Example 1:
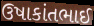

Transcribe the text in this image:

ઉષાકાંતભાઈ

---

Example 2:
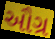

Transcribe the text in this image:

ઔગ્ર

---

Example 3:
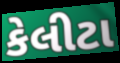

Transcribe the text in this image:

કેલીટા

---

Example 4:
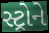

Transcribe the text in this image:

સ્ટ્રોને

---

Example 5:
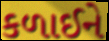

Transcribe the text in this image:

કળાઈને